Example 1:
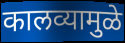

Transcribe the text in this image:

कालव्यामुळे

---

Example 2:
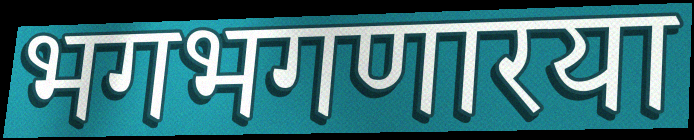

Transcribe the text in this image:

भगभगणारया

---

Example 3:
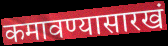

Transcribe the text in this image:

कमावण्यासारखं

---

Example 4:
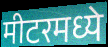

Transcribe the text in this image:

मीटरमध्ये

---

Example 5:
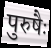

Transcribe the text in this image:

पुरुषैः